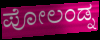
ಪೋಲಂಡ್ನ